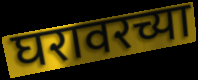
घरावरच्या